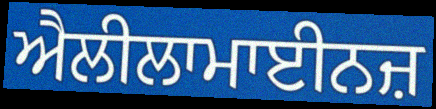
ਐਲੀਲਾਮਾਈਨਜ਼